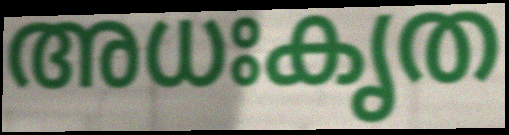
അധഃകൃത